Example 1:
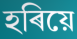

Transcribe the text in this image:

হৰিয়ে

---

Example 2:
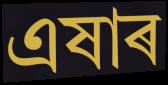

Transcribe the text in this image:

এষাৰ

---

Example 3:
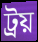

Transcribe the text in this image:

ট্ৰয়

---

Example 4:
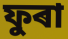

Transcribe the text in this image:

ফুৰা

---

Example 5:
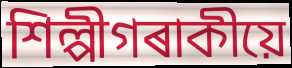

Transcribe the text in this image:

শিল্পীগৰাকীয়ে